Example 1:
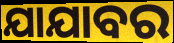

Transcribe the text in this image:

ଯାଯାବର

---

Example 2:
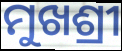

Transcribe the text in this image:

ମୁଖଶ୍ରୀ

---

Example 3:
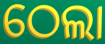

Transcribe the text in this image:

ଠେଲା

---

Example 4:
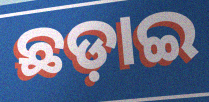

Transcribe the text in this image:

ଛଡ଼ାଇ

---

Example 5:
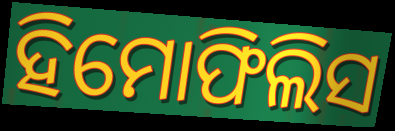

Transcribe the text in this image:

ହିମୋଫିଲିସ